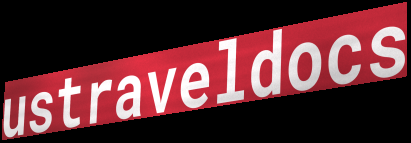
ustraveldocs